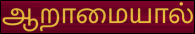
ஆறாமையால்